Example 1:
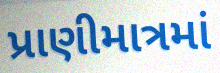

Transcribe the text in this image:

પ્રાણીમાત્રમાં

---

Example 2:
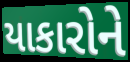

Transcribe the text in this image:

યાકારોને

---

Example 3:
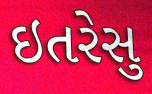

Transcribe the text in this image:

ઇતરેસુ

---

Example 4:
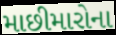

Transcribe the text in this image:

માછીમારોના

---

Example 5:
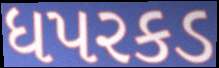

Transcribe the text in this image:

ધપરકડ